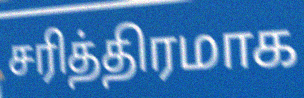
சரித்திரமாக